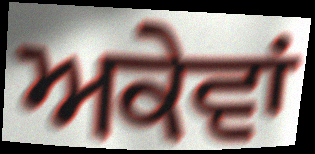
ਅਕੇਵਾਂ